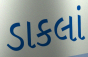
ડાકલાં